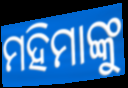
ମହିମାଙ୍କୁ